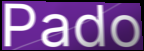
Pado